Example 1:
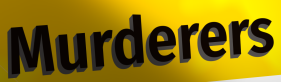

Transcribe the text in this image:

Murderers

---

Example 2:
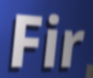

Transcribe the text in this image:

Fir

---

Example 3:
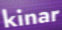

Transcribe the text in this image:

kinar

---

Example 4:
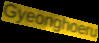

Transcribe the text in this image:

Gyeonghoeru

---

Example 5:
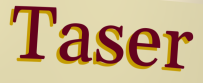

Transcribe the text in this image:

Taser